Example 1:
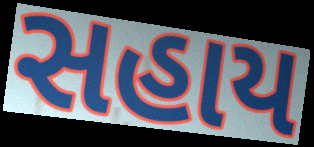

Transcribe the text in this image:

સહાય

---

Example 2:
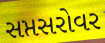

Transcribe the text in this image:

સપ્તસરોવર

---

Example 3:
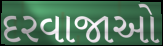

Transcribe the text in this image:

દરવાજાઓ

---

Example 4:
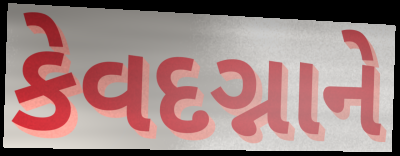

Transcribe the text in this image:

કેવદગ્નાને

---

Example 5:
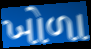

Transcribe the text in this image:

ખોળા